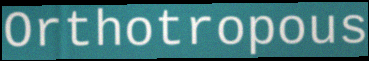
Orthotropous